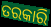
ତରକାରି